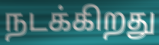
நடக்கிறது